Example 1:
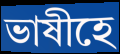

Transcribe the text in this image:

ভাষীহে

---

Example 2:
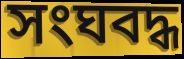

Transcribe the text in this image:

সংঘবদ্ধ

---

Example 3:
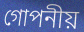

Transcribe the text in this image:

গোপনীয়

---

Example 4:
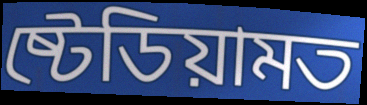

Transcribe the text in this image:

ষ্টেডিয়ামত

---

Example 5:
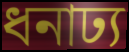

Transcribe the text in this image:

ধনাঢ্য